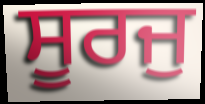
ਸੂਰਜੁ